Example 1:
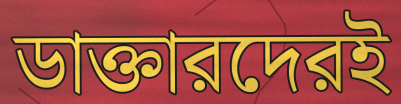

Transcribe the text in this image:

ডাক্তারদেরই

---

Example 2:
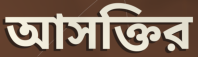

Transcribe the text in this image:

আসক্তির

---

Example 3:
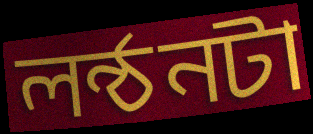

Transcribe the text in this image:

লন্ঠনটা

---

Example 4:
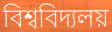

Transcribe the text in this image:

বিশ্ববিদ্যলয়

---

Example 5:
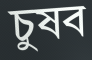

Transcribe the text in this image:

চুষব